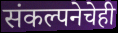
संकल्पनेचेही